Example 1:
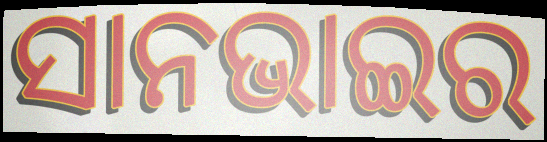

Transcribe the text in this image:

ସାନଭାଇର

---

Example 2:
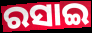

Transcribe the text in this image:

ରସାଇ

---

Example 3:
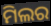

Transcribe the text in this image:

ମିଲର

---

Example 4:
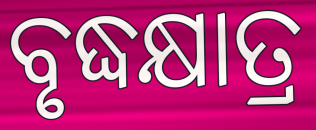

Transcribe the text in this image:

ବୃଦ୍ଧକ୍ଷାତ୍ର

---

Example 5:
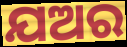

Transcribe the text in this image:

ଯଅର